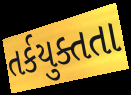
તર્કયુક્તતા